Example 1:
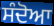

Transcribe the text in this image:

ਸੰਦੋਆ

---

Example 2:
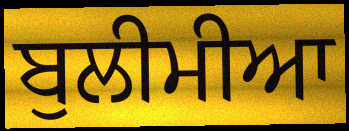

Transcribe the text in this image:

ਬੁਲੀਮੀਆ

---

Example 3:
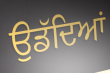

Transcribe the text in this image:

ਉਡੱਦਿਆਂ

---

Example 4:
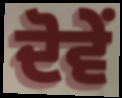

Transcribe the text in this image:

ਦੋਵੇਂ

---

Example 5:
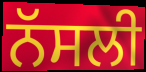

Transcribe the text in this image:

ਨੱਸਲੀ